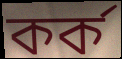
কৰ্ক